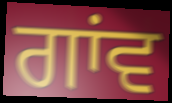
ਗਾਂਵ